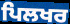
ਪਿਲਖਰ